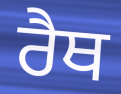
ਰੈਥ